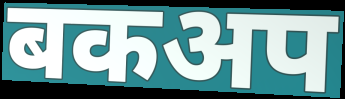
बकअप